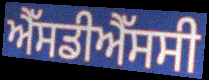
ਐੱਸਡੀਐੱਸਸੀ